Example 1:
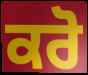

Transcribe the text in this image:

ਕਰੋ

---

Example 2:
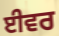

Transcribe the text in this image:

ਈਵਰ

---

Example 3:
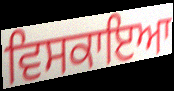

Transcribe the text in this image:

ਵਿਸਕਾਇਆ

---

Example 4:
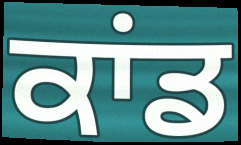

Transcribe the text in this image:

ਕਾਂਡ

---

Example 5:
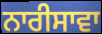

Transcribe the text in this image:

ਨਾਰੀਸਾਵਾ